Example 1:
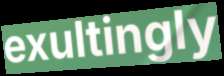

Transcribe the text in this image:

exultingly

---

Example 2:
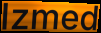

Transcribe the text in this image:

Izmed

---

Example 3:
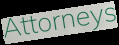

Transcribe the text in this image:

Attorneys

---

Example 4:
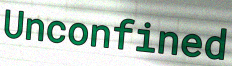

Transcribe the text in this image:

Unconfined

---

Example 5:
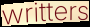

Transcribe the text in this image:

writters